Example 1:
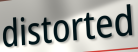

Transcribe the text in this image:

distorted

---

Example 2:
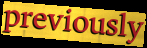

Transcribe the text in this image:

previously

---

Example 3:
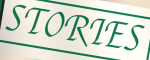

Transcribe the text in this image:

STORIES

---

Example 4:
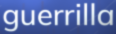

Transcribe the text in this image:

guerrilla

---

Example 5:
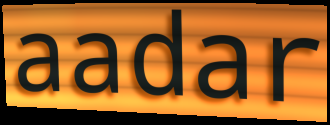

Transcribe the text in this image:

aadar